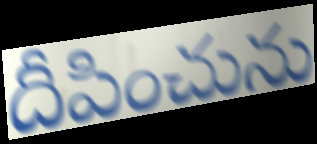
దీపించును